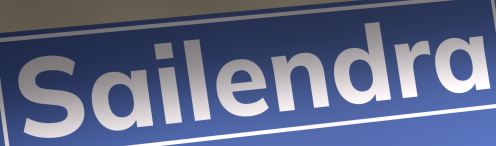
Sailendra